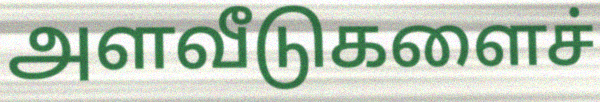
அளவீடுகளைச்